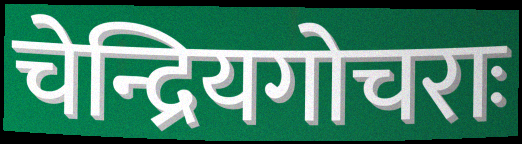
चेन्द्रियगोचराः